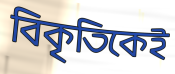
বিকৃতিকেই